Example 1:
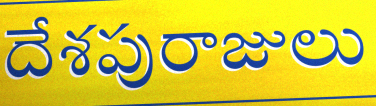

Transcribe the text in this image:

దేశపురాజులు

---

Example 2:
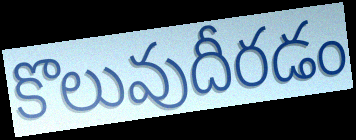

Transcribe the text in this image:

కొలువుదీరడం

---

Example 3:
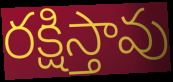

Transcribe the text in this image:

రక్షిస్తావు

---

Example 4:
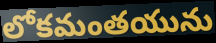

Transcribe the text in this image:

లోకమంతయును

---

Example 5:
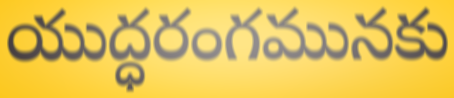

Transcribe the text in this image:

యుద్ధరంగమునకు